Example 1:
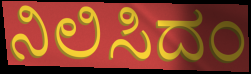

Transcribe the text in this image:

ನಿಲಿಸಿದಂ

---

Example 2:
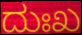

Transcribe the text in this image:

ದುಃಖ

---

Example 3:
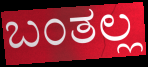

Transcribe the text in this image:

ಬಂತಲ್ಲ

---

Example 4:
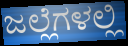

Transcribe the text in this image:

ಜಲ್ಲೆಗಳಲ್ಲಿ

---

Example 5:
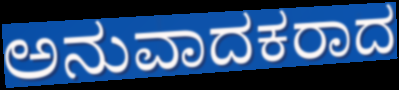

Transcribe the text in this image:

ಅನುವಾದಕರಾದ